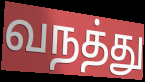
வநத்து